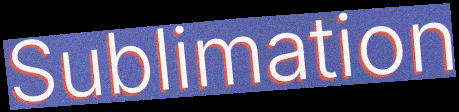
Sublimation